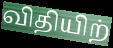
விதியிற்